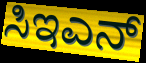
ಸಿಇಎನ್